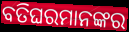
ବତିଘରମାନଙ୍କର